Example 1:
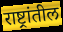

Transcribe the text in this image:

राष्ट्रांतील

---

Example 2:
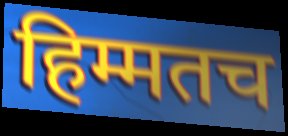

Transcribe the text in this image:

हिम्मतच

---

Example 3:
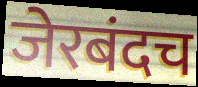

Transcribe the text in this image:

जेरबंदच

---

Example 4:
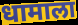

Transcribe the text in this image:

धामाला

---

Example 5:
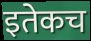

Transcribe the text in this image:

इतेकच